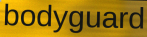
bodyguard